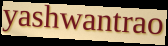
yashwantrao